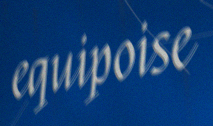
equipoise